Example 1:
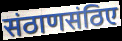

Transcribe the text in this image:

संठाणसंठिए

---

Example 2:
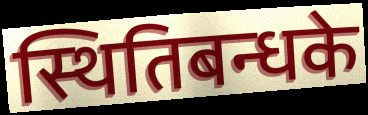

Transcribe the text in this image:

स्थितिबन्धके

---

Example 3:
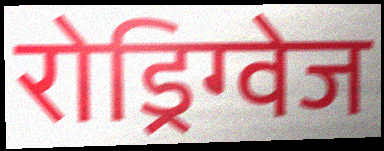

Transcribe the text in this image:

रोड्रिग्वेज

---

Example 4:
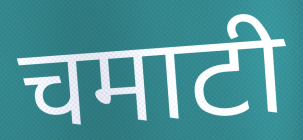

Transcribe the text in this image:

चमाटी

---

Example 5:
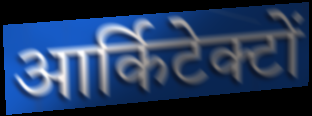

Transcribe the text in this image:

आर्किटेक्टों